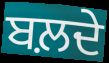
ਬਲ਼ਦੇ